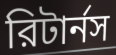
রিটার্নস